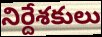
నిర్దేశకులు